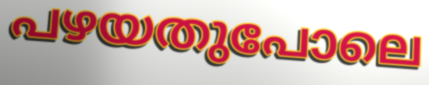
പഴയതുപോലെ